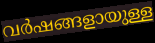
വർഷങ്ങളായുള്ള